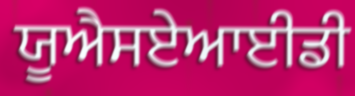
ਯੂਐਸਏਆਈਡੀ